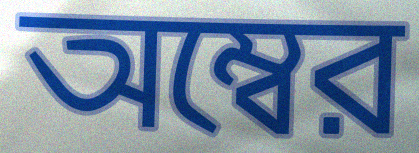
অম্বের